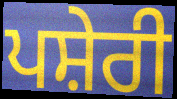
ਪਸ਼ੇਰੀ